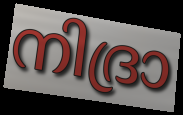
നിദ്രാ